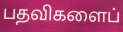
பதவிகளைப்